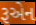
રૂએન